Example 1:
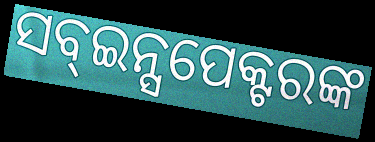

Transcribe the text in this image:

ସବ୍ଇନ୍ସପେକ୍ଟରଙ୍କ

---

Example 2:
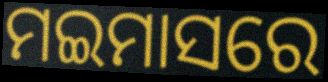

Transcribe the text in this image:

ମଇମାସରେ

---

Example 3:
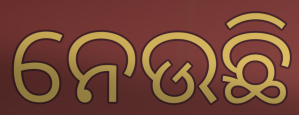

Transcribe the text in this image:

ନେଉଛି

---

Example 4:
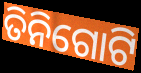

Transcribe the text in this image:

ତିନିଗୋଟି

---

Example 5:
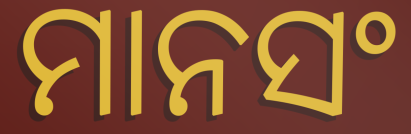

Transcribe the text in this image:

ମାନସଂ